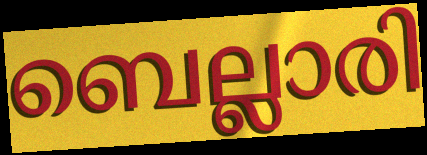
ബെല്ലാരി